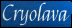
Cryolava